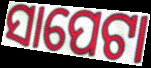
ସାପେଟା